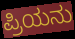
ಪ್ರಿಯನು